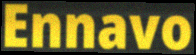
Ennavo